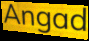
Angad